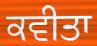
ਕਵੀਤਾ